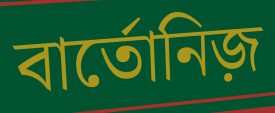
বার্তোনিজ়